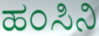
ಹಂಸಿನಿ